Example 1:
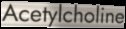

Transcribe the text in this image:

Acetylcholine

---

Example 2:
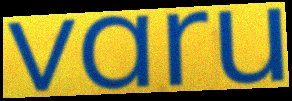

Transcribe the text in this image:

varu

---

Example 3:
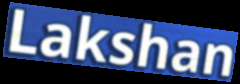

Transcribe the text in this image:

Lakshan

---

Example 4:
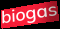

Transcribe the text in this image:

biogas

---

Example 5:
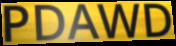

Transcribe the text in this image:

PDAWD